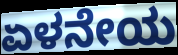
ಏಳನೇಯ